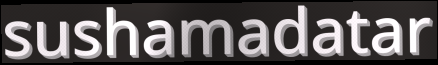
sushamadatar